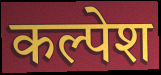
कल्पेश